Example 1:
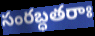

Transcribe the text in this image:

సంరబ్ధతరాః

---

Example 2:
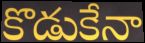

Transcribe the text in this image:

కొడుకేనా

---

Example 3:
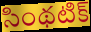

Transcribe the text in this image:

సింథటిక్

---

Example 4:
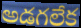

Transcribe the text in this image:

అడగలేక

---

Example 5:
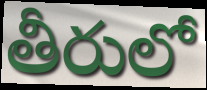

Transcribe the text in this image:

తీరులో